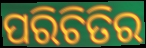
ପରିଚିତିର